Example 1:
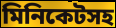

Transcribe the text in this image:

মিনিকেটসহ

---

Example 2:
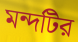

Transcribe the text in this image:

মন্দটির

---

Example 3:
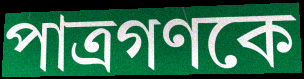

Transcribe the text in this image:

পাত্রগণকে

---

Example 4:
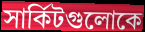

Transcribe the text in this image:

সার্কিটগুলোকে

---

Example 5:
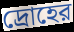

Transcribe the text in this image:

দ্রোহের